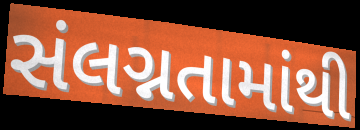
સંલગ્નતામાંથી